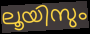
ലൂയിസും